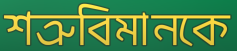
শত্রুবিমানকে